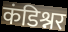
कंडिश्नर